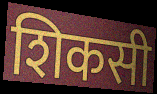
शिकसी